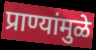
प्राण्यांमुळे